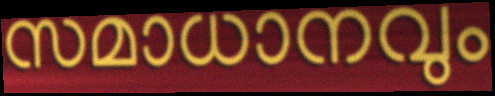
സമാധാനവും